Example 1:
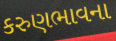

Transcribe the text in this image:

કરુણભાવના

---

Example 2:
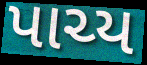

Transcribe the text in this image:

પાચ્ય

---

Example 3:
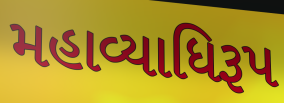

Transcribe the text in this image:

મહાવ્યાધિરૂપ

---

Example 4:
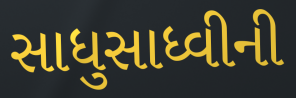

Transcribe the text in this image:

સાધુસાધ્વીની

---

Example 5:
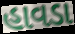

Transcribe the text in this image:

હાવડા